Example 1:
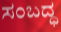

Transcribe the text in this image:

ಸಂಬದ್ಧ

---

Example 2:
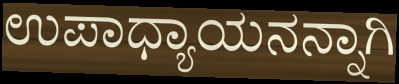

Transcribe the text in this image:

ಉಪಾಧ್ಯಾಯನನ್ನಾಗಿ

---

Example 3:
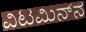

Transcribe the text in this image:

ವಿಟಮಿನ್‌ನ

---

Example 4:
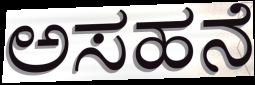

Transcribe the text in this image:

ಅಸಹನೆ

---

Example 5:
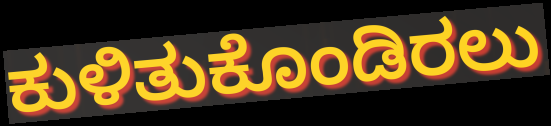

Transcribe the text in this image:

ಕುಳಿತುಕೊಂಡಿರಲು